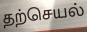
தற்செயல்